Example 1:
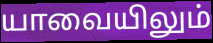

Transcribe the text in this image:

யாவையிலும்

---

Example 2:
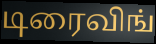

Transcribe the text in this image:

டிரைவிங்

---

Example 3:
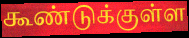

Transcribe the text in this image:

கூண்டுக்குள்ள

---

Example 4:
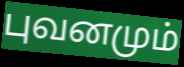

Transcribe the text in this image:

புவனமும்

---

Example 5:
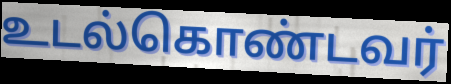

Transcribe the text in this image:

உடல்கொண்டவர்